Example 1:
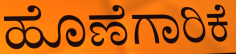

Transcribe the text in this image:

ಹೊಣೆಗಾರಿಕೆ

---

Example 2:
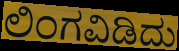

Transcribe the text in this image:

ಲಿಂಗವಿಡಿದು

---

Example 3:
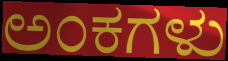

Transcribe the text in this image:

ಅಂಕಗಳು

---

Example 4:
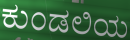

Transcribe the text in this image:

ಕುಂಡಲಿಯ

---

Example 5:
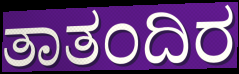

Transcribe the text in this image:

ತಾತಂದಿರ